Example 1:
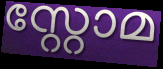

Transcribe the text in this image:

സ്റ്റോമ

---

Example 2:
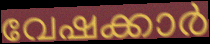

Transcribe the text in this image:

വേഷക്കാർ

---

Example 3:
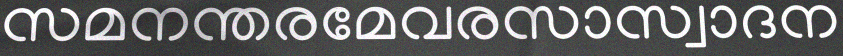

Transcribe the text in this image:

സമനന്തരമേവരസാസ്വാദന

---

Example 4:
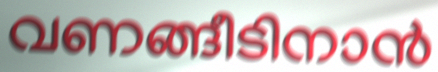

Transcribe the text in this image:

വണങ്ങീടിനാൻ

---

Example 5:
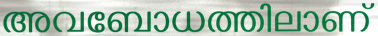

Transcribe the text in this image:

അവബോധത്തിലാണ്